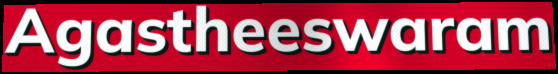
Agastheeswaram